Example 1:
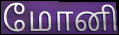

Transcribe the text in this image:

மோனி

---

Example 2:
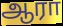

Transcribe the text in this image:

ஆரா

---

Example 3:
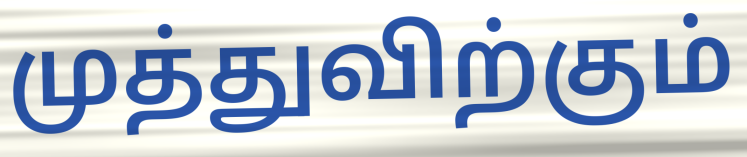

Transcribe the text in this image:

முத்துவிற்கும்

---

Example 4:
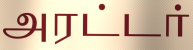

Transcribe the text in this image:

அரட்டர்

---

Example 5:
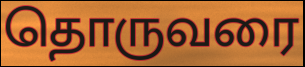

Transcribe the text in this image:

தொருவரை